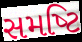
સમષ્‍ટિ